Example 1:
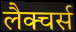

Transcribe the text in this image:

लैक्चर्स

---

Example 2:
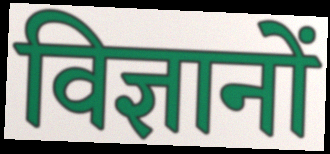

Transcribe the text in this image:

विज्ञानों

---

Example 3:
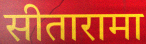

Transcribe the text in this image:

सीतारामा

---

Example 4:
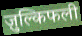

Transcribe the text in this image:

ज़ुल्किफली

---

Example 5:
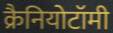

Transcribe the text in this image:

क्रैनियोटॉमी